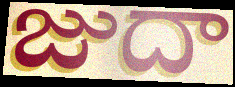
జుదా